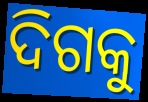
ଦିଗକୁ